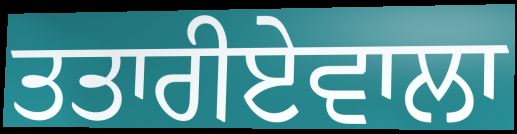
ਤਤਾਰੀਏਵਾਲਾ